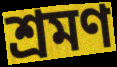
শ্রমণ